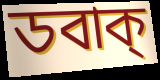
ডবাক্